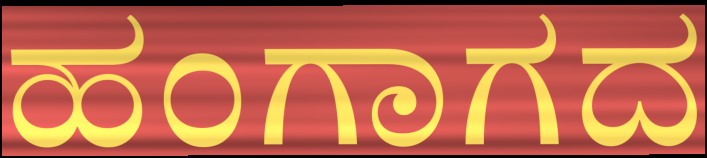
ಹಂಗಾಗದ